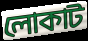
লোকাট